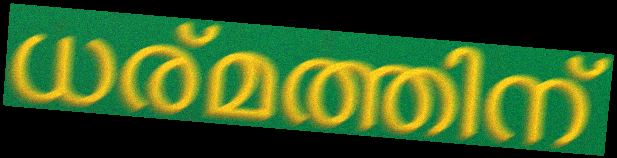
ധര്മത്തിന്